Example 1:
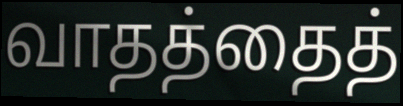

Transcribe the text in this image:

வாதத்தைத்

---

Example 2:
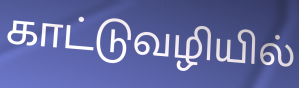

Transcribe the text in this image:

காட்டுவழியில்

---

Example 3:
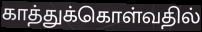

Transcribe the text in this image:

காத்துக்கொள்வதில்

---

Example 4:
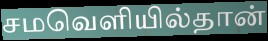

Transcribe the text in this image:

சமவெளியில்தான்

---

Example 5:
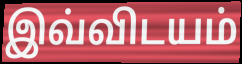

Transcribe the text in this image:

இவ்விடயம்